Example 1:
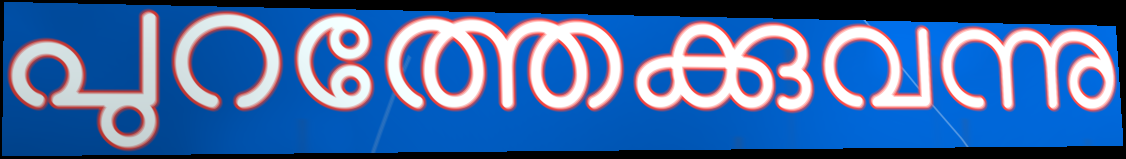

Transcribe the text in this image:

പുറത്തേക്കുവന്നു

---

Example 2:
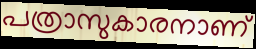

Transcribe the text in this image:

പത്രാസുകാരനാണ്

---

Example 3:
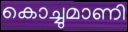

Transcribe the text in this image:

കൊച്ചുമാണി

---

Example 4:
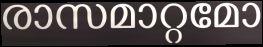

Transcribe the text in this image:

രാസമാറ്റമോ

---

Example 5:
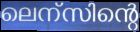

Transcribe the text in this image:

ലെന്സിന്റെ